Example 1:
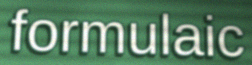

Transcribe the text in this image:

formulaic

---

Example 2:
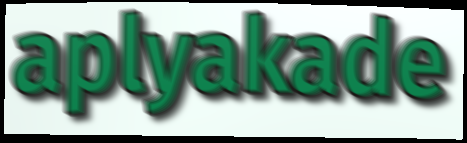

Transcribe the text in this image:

aplyakade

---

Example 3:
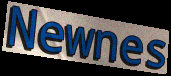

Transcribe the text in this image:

Newnes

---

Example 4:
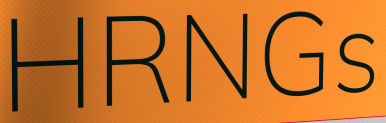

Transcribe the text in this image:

HRNGs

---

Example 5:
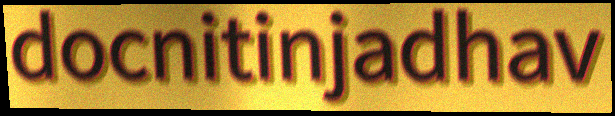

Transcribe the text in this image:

docnitinjadhav